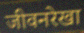
जीवनरेखा